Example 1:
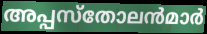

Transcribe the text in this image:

അപ്പസ്തോലൻമാർ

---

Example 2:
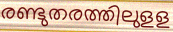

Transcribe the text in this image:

രണ്ടുതരത്തിലുളള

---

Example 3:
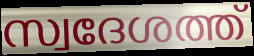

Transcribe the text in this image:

സ്വദേശത്ത്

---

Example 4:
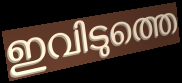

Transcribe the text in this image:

ഇവിടുത്തെ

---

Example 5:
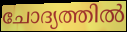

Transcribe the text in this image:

ചോദ്യത്തിൽ